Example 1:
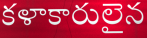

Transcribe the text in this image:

కళాకారులైన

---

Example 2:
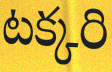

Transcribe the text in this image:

టక్కరి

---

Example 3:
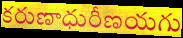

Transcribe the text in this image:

కరుణాధురీణయగు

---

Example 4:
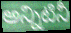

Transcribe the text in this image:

అన్నిటినీ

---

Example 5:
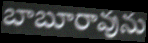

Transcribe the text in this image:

బాబూరావును